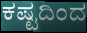
ಕಷ್ಟದಿಂದ